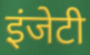
इंजेटी